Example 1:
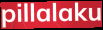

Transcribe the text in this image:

pillalaku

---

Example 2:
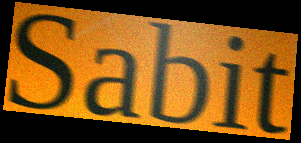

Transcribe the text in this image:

Sabit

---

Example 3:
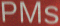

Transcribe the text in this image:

PMs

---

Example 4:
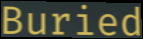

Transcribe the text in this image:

Buried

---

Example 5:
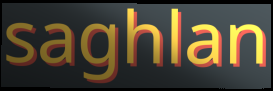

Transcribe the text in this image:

saghlan